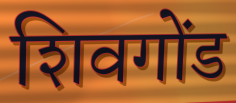
शिवगोंड